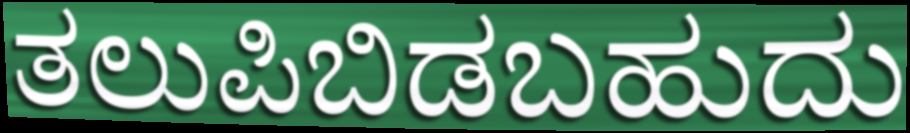
ತಲುಪಿಬಿಡಬಹುದು